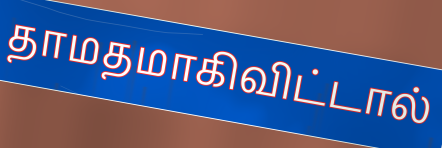
தாமதமாகிவிட்டால்